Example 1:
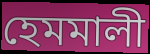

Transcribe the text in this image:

হেমমালী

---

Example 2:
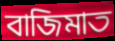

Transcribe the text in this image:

বাজিমাত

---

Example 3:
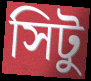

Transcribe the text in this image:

সিটু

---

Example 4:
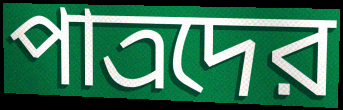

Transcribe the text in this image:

পাত্রদের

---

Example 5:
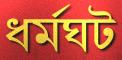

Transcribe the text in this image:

ধর্মঘট